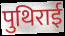
पुथिराई